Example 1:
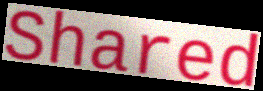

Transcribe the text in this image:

Shared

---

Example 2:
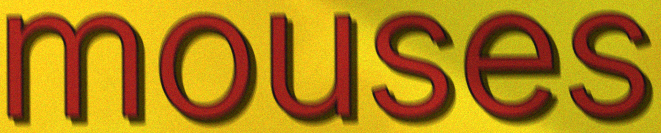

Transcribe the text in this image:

mouses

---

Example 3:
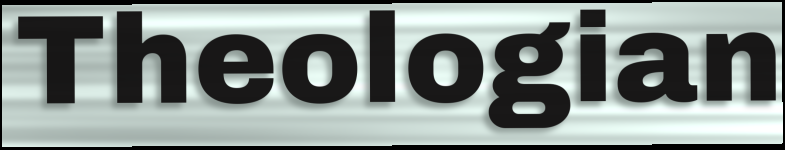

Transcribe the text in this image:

Theologian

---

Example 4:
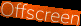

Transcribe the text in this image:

Offscreen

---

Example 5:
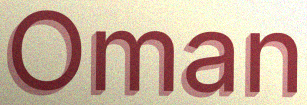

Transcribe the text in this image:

Oman